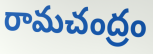
రామచంద్రం